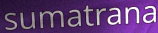
sumatrana